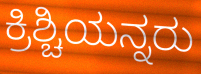
ಕ್ರಿಶ್ಚಿಯನ್ನರು